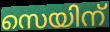
സെയിന്